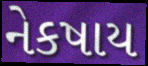
નેકષાય